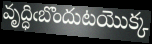
వృద్ధిఁబొందుటయొక్క